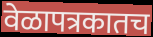
वेळापत्रकातच